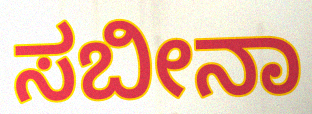
ಸಬೀನಾ